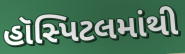
હૉસ્પિટલમાંથી